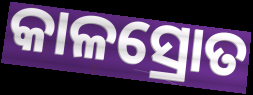
କାଳସ୍ରୋତ